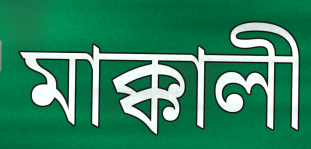
মাক্কালী